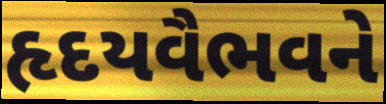
હૃદયવૈભવને